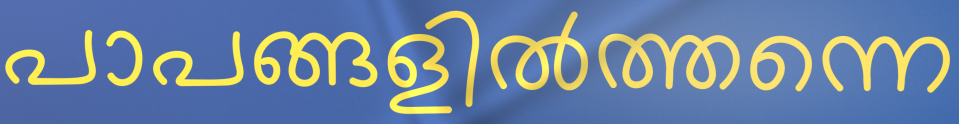
പാപങ്ങളിൽത്തന്നെ